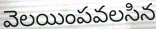
వెలయింపవలసిన